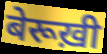
बेरूख़ी